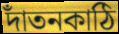
দাঁতনকাঠি